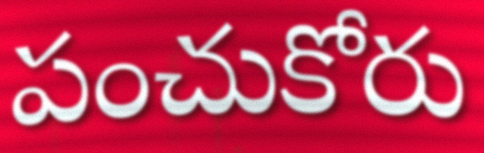
పంచుకోరు